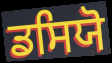
ਡਸਿਯੋ